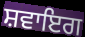
ਸ਼ਵਾਇਗ